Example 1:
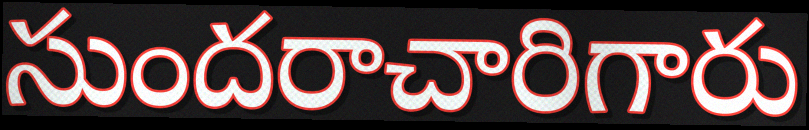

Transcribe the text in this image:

సుందరాచారిగారు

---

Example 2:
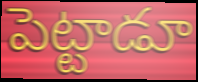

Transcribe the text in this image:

పెట్టాడూ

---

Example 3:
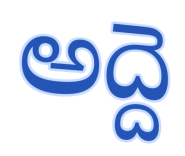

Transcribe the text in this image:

అద్దె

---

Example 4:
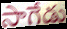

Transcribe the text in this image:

సాగేడు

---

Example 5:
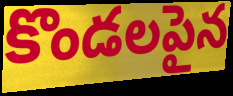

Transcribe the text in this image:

కొండలపైన